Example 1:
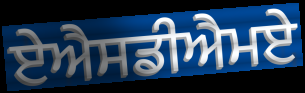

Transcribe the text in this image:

ਏਐਸਡੀਐਮਏ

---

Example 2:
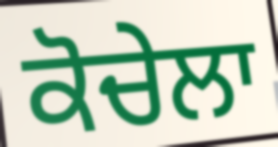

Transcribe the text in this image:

ਕੋਚੇਲਾ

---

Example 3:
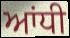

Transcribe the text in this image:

ਆਂਧੀ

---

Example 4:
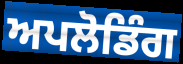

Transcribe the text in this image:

ਅਪਲੋਡਿੰਗ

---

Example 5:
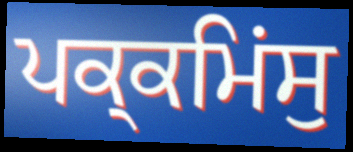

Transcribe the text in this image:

ਪਕ੍ਕਮਿਂਸੁ